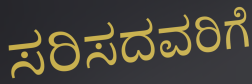
ಸರಿಸದವರಿಗೆ